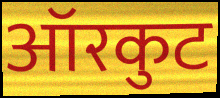
ऑरकुट